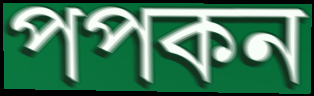
পপকন